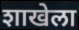
शाखेला